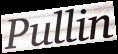
Pullin